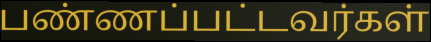
பண்ணப்பட்டவர்கள்